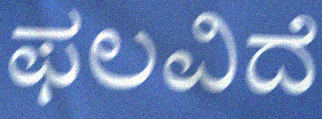
ಫಲವಿದೆ